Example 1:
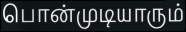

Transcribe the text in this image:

பொன்முடியாரும்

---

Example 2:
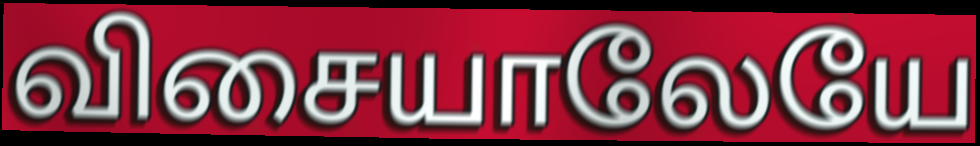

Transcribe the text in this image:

விசையாலேயே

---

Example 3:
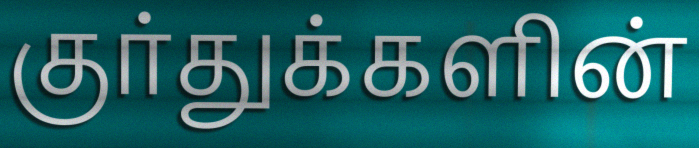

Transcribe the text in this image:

குர்துக்களின்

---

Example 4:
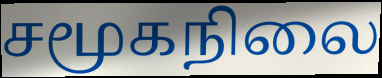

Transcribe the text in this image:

சமூகநிலை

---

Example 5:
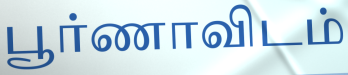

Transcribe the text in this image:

பூர்ணாவிடம்